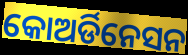
କୋଅର୍ଡିନେସନ